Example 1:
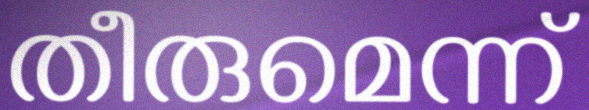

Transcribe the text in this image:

തീരുമെന്ന്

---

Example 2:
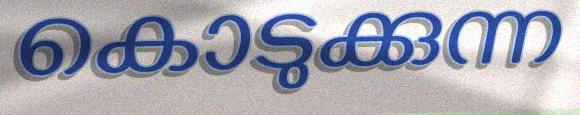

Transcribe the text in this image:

കൊടുക്കുന്ന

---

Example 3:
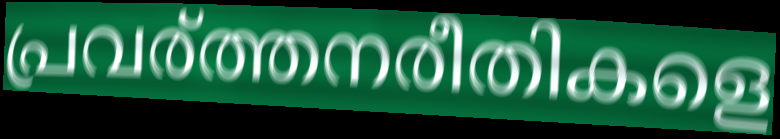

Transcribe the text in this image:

പ്രവര്ത്തനരീതികളെ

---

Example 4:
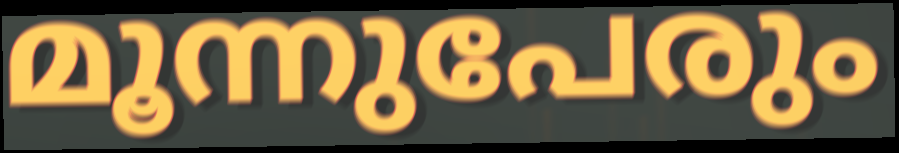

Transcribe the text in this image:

മൂന്നുപേരും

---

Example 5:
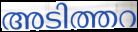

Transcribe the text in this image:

അടിത്തറ